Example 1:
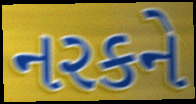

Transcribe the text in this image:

નરકને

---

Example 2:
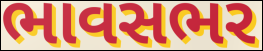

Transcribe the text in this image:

ભાવસભર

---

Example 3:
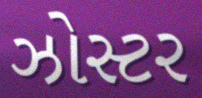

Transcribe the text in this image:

ઝોસ્ટર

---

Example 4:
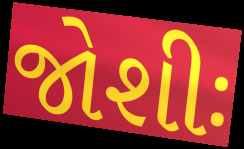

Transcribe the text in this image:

જોશીઃ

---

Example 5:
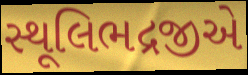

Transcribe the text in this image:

સ્થૂલિભદ્રજીએ